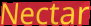
Nectar